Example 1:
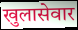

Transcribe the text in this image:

खुलासेवार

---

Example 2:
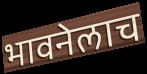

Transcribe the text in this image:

भावनेलाच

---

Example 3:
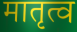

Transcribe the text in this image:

मातृत्व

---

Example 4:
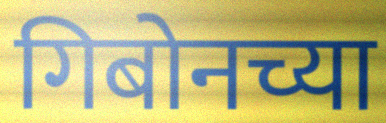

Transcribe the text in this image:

गिबोनच्या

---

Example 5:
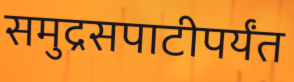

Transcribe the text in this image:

समुद्रसपाटीपर्यंत